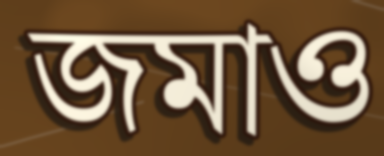
জমাও